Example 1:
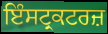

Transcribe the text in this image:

ਇੰਸਟ੍ਰਕਟਰਜ਼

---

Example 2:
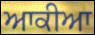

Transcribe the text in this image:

ਆਕੀਆ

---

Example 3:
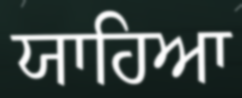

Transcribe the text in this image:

ਯਾਹਿਆ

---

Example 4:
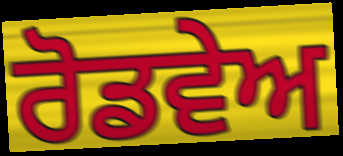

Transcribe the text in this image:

ਰੋਡਵੇਅ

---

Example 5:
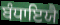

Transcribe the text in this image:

ਬੰਧਾਇਯੈ